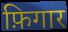
फ़िगार